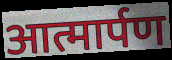
आत्मार्पण